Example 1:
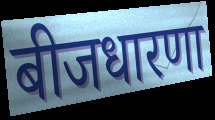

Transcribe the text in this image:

बीजधारणा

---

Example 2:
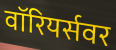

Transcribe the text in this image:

वॉरियर्सवर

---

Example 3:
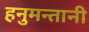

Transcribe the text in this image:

हनुमन्तानी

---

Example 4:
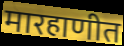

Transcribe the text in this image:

मारहाणीत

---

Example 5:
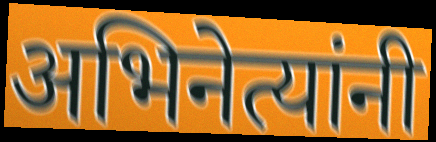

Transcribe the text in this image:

अभिनेत्यांनी